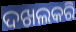
ଦଖଲକରି